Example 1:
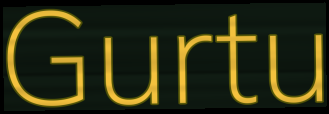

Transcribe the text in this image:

Gurtu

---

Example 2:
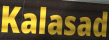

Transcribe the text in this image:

Kalasad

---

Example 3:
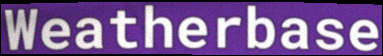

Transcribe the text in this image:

Weatherbase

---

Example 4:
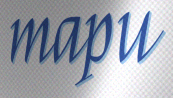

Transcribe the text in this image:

mapu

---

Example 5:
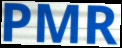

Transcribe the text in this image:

PMR